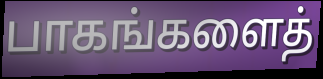
பாகங்களைத்